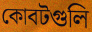
কোবটগুলি